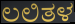
ಲಲಿತಳ